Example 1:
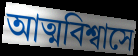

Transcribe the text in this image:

আত্মবিশ্বাসে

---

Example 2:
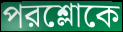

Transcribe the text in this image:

পরশ্লোকে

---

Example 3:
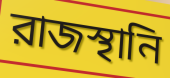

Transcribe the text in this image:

রাজস্থানি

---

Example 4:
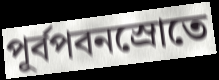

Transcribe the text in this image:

পূর্বপবনস্রোতে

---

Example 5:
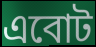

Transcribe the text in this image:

এবোট